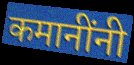
कमानींनी